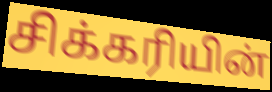
சிக்கரியின்